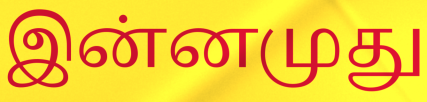
இன்னமுது